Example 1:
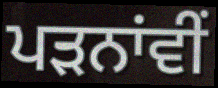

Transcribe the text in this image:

ਪੜਨਾਂਵੀਂ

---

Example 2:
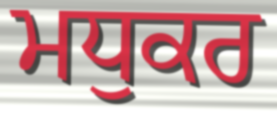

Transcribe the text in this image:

ਮਧੁਕਰ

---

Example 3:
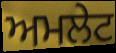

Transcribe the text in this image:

ਅਮਲੇਟ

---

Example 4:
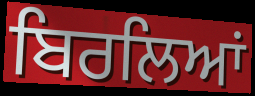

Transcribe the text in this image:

ਬਿਰਲਿਆਂ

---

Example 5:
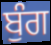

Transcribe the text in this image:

ਬੁੰਗ